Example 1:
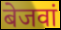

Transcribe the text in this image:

बेजवां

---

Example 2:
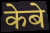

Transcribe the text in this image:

केबे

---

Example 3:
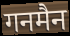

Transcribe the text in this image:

गनमैन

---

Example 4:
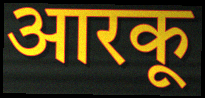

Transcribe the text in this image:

आरकू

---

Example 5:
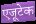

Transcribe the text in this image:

एजूटेक